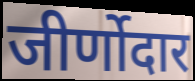
जीर्णोदार